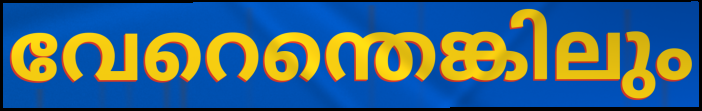
വേറെന്തെങ്കിലും